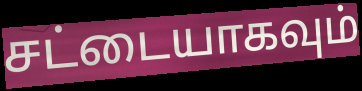
சட்டையாகவும்